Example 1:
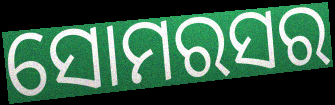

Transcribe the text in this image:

ସୋମରସର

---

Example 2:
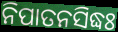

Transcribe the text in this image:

ନିପାତନସିଦ୍ଧଃ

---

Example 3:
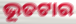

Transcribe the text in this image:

ଭୂତଟାର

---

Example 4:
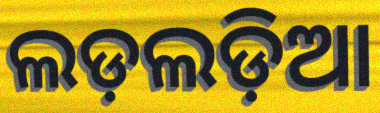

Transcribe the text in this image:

ଲଡ଼ଲଡ଼ିଆ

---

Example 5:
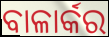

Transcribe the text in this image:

ବାଳାର୍କର